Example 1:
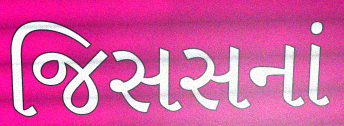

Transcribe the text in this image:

જિસસનાં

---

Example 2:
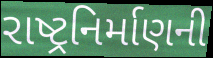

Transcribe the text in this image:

રાષ્ટ્રનિર્માણની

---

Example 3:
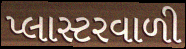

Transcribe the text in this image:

પ્લાસ્ટરવાળી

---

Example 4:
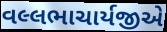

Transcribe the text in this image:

વલ્લભાચાર્યજીએ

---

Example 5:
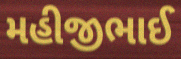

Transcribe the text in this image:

મહીજીભાઈ